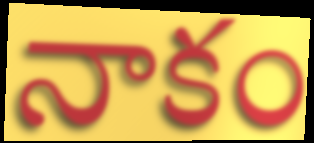
నాకం